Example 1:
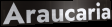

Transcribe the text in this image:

Araucaria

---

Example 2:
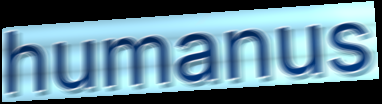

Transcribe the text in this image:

humanus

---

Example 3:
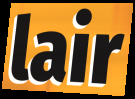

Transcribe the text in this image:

lair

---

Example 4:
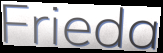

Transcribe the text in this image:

Frieda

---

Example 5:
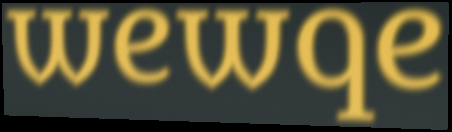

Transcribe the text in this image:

wewqe